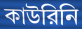
কাউরিনি